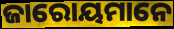
ଜାରୋୟମାନେ